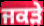
ਜਕੜੇ